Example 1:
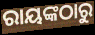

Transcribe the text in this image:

ରାୟଙ୍କଠାରୁ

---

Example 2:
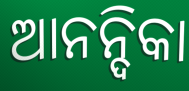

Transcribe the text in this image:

ଆନନ୍ଦିକା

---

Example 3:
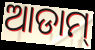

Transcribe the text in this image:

ଆଡାମ୍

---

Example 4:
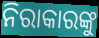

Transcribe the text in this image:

ନିରାକାରଙ୍କୁ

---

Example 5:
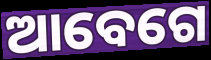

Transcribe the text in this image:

ଆବେଗେ